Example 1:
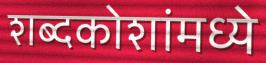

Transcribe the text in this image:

शब्दकोशांमध्ये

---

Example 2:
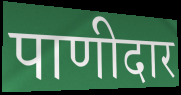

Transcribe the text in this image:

पाणीदार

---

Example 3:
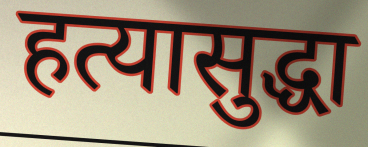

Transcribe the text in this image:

हत्यासुद्धा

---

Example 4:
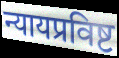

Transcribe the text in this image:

न्यायप्रविष्ट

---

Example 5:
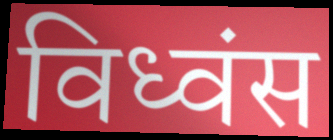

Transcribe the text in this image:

विध्वंस